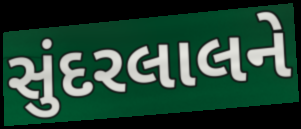
સુંદરલાલને